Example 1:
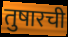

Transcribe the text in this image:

तुषारची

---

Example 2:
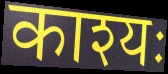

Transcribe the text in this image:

काश्यः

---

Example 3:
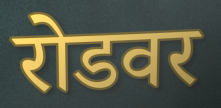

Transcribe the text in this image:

रोडवर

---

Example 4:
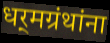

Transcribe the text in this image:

धर्मग्रंथांना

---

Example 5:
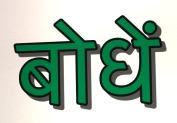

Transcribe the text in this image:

बोधें